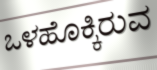
ಒಳಹೊಕ್ಕಿರುವ